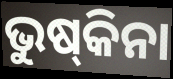
ଭୁଷ୍‌କିନା